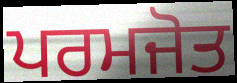
ਪਰਮਜੋਤ